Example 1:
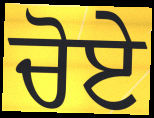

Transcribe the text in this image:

ਚੋਏ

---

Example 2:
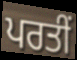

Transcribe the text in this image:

ਪਰਤੀਂ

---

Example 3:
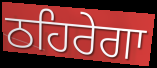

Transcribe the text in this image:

ਠਹਿਰੇਗਾ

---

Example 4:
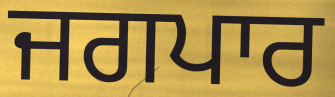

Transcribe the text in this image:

ਜਗਪਾਰ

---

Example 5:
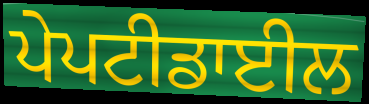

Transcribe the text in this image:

ਪੇਪਟੀਡਾਈਲ